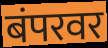
बंपरवर